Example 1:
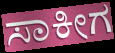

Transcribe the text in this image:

ಸಾಕೀಗ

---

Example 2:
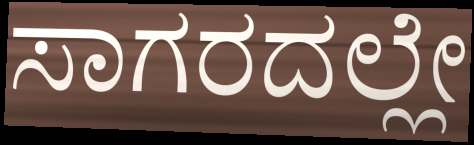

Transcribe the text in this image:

ಸಾಗರದಲ್ಲೇ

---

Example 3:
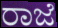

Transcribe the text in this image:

ರಾಜೆ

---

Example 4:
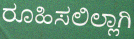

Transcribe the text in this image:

ರೂಹಿಸಲಿಲ್ಲಾಗಿ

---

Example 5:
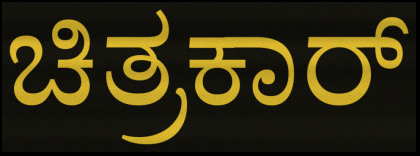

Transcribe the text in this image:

ಚಿತ್ರಕಾರ್